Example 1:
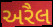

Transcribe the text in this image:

અરૈલ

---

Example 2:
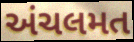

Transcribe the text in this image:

અંચલમત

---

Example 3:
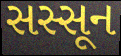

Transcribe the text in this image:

સસ્સૂન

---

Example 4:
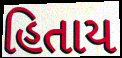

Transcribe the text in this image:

હિતાય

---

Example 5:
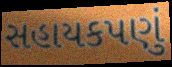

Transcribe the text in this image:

સહાયકપણું